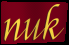
nuk